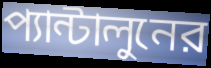
প্যান্টালুনের